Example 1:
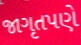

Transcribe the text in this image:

જાગૃતપણે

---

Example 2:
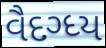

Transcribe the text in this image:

વૈદગ્ધ્ય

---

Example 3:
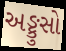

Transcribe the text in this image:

અઙ્કુસો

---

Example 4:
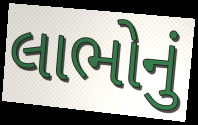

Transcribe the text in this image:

લાભોનું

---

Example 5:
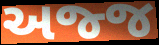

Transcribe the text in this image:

અજ્જ